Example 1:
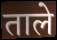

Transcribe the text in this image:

ताले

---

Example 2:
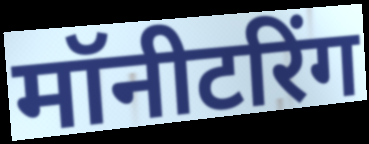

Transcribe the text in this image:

मॉनीटरिंग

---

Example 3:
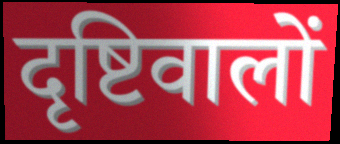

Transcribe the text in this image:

दृष्टिवालों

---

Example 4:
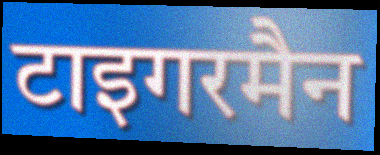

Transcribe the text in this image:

टाइगरमैन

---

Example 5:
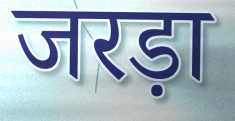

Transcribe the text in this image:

जरड़ा